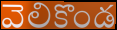
వెలికొండ